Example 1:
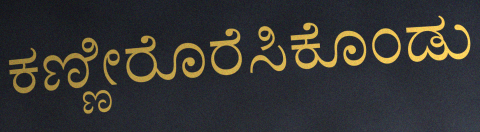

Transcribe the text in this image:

ಕಣ್ಣೀರೊರೆಸಿಕೊಂಡು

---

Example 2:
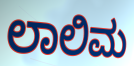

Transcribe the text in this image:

ಲಾಲಿಮ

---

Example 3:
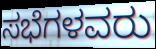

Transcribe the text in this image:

ಸಭೆಗಳವರು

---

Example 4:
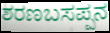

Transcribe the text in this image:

ಶರಣಬಸಪ್ಪನ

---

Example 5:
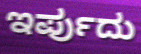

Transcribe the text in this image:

ಇರ್ಪುದು